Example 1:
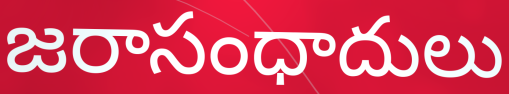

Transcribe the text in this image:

జరాసంధాదులు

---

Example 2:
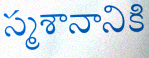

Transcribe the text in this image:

స్మశానానికి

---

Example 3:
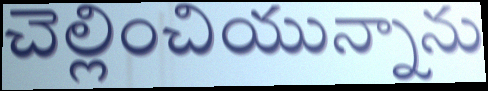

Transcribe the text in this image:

చెల్లించియున్నాను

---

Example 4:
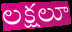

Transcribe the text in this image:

లక్షలూ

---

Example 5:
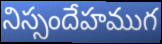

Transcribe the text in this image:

నిస్సందేహముగ